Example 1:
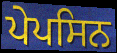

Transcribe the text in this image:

ਪੇਪਸਿਨ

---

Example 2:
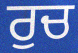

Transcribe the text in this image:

ਰੁਚ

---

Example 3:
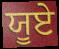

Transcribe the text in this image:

ਯੂਏ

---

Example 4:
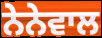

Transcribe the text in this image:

ਨੇਨੇਵਾਲ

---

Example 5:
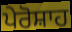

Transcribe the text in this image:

ਪੇਰੋਸ਼ਾਹ